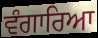
ਵੰਗਾਰਿਆ